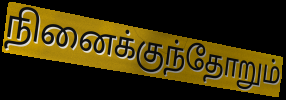
நினைக்குந்தோறும்